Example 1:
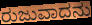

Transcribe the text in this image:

ರುಜುವಾದನು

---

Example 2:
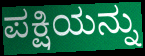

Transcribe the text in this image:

ಪಕ್ಷಿಯನ್ನು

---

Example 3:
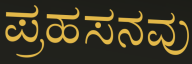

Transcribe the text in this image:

ಪ್ರಹಸನವು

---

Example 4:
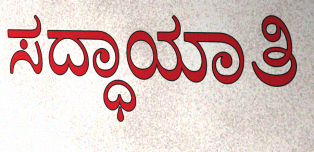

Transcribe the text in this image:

ಸದ್ಧಾಯಾತಿ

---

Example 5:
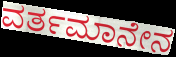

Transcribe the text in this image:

ವರ್ತಮಾನೇನ